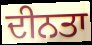
ਦੀਨਤਾ